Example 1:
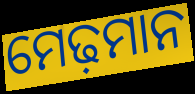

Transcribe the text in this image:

ମେଢ଼ମାନ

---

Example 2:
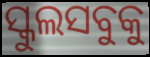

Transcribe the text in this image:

ସ୍କୁଲସବୁକୁ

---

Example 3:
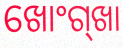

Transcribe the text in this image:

ଖୋଂଗ୍‍ଖା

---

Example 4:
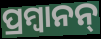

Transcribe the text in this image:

ପ୍ରମ୍ବାନନ୍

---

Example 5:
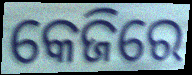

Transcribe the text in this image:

କେଜିରେ